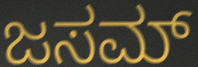
ಜಸಮ್